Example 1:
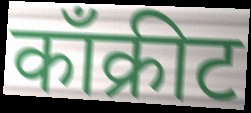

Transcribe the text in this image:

काँक्रीट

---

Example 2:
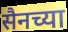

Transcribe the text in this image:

सैनच्या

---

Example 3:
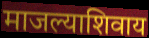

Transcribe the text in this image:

माजल्याशिवाय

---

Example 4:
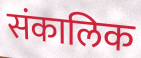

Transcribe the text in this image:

संकालिक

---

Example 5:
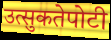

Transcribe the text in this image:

उत्सुकतेपोटी